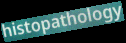
histopathology